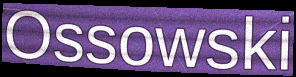
Ossowski